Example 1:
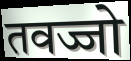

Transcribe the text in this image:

तवज्जो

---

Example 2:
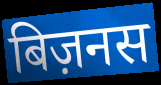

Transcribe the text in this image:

बिज़नस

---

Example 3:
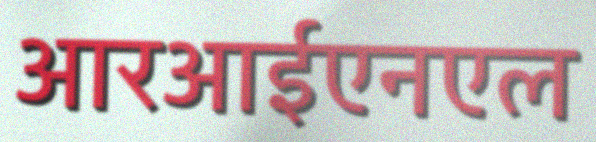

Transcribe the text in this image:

आरआईएनएल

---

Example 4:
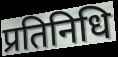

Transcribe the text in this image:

प्रतिनिधि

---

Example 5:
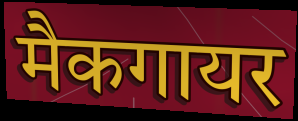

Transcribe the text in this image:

मैकगायर